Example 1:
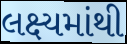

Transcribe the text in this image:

લક્ષ્યમાંથી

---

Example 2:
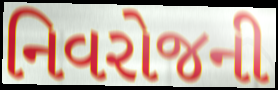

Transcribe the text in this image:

નિવરોજની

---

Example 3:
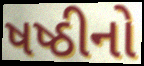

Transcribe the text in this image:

ષષ્ઠીનો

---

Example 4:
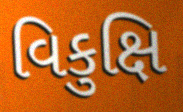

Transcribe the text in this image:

વિકુક્ષિ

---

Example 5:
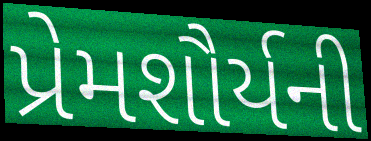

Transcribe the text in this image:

પ્રેમશૌર્યની